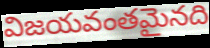
విజయవంతమైనది